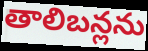
తాలిబన్లను